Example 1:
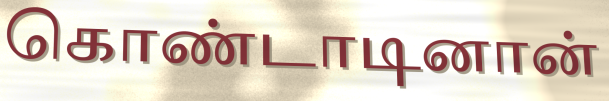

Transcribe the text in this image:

கொண்டாடினான்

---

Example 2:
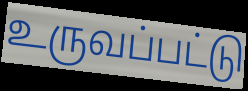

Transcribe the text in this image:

உருவப்பட்டு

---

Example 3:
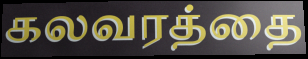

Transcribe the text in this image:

கலவரத்தை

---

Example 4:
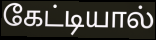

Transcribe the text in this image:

கேட்டியால்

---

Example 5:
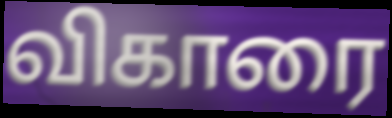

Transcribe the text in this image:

விகாரை